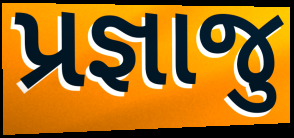
પ્રજ્ઞાજુ